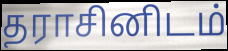
தராசினிடம்